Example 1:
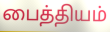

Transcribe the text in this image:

பைத்தியம்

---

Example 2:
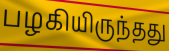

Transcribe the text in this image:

பழகியிருந்தது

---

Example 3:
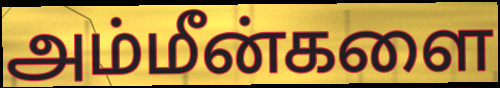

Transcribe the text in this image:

அம்மீன்களை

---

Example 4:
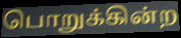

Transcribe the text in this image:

பொறுக்கின்ற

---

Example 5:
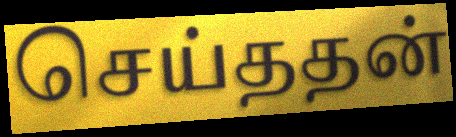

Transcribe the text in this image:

செய்ததன்